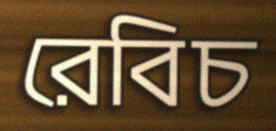
রেবিচ